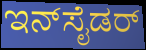
ಇನ್‌ಸೈಡರ್